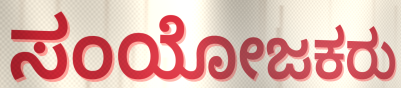
ಸಂಯೋಜಕರು